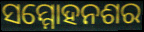
ସମ୍ମୋହନଶର